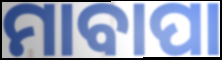
ମାବାପା